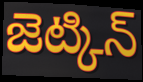
జెట్కిన్